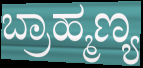
ಬ್ರಾಹ್ಮಣ್ಯ